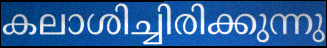
കലാശിച്ചിരിക്കുന്നു